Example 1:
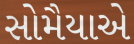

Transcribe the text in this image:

સોમૈયાએ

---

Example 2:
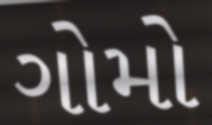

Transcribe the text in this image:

ગોમો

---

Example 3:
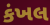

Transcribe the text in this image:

કંખલ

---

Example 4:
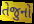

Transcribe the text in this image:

તેજુનો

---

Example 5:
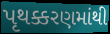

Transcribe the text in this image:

પૃથક્કરણમાંથી